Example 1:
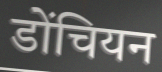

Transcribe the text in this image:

डोंचियन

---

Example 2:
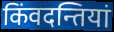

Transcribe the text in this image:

किंवदन्तियां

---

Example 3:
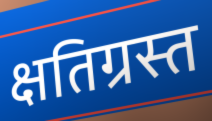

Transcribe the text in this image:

क्षतिग्रस्त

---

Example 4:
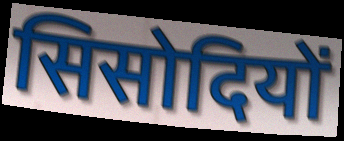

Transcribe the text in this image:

सिसोदियों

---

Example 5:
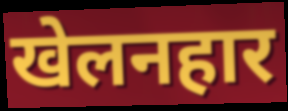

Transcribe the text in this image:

खेलनहार